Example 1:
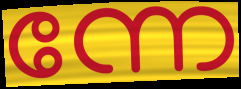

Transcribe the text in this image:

ന്നേ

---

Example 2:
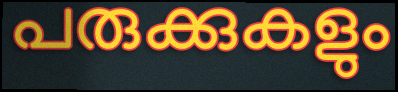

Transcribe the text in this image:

പരുക്കുകളും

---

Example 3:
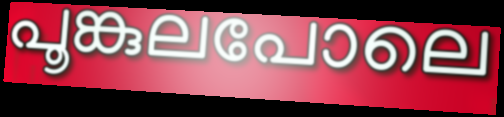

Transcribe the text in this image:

പൂങ്കുലപോലെ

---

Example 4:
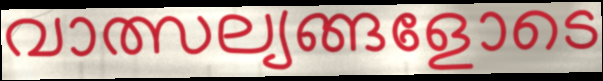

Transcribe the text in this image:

വാത്സല്യങ്ങളോടെ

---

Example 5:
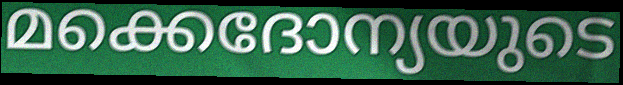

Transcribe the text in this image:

മക്കെദോന്യയുടെ